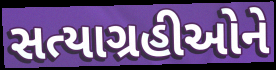
સત્યાગ્રહીઓને